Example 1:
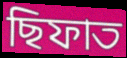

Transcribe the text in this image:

ছিফাত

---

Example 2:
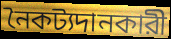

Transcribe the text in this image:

নৈকট্যদানকারী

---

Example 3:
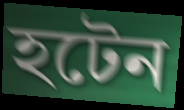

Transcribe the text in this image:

হটেন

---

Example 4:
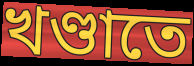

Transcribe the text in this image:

খণ্ডাতে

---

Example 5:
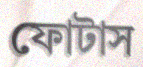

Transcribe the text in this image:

ফোটাস